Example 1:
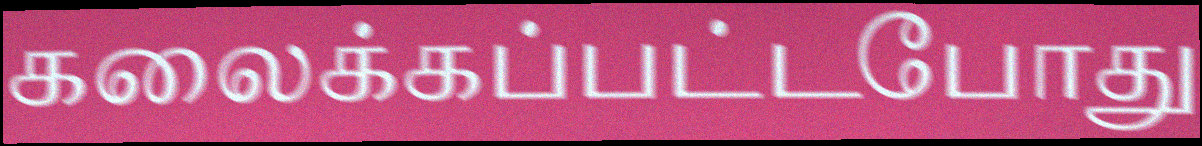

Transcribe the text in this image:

கலைக்கப்பட்டபோது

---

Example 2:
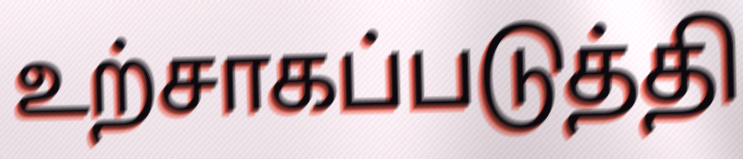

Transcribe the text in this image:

உற்சாகப்படுத்தி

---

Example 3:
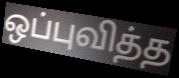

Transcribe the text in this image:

ஒப்புவித்த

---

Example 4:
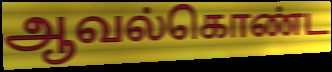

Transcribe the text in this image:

ஆவல்கொண்ட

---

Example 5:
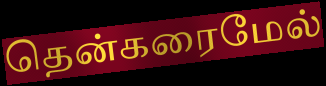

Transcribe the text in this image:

தென்கரைமேல்